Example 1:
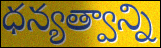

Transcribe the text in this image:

ధన్యత్వాన్ని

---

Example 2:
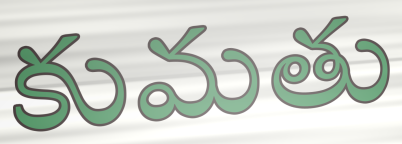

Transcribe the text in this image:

కుమతు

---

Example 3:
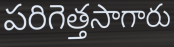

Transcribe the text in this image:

పరిగెత్తసాగారు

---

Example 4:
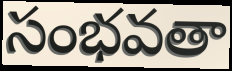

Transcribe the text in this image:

సంభవతా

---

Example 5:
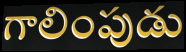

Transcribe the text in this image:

గాలింపుడు